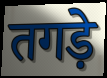
तगड़े